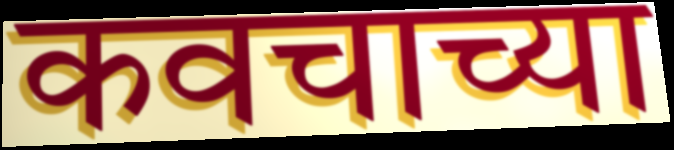
कवचाच्या